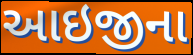
આઇજીના